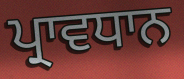
ਪ੍ਰਾਵਧਾਨ